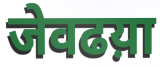
जेवढय़ा